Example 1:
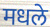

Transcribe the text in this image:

मधले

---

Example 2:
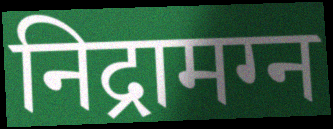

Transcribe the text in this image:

निद्रामग्न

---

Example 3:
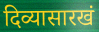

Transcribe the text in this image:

दिव्यासारखं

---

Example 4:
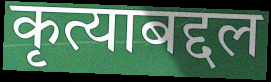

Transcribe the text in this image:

कृत्याबद्दल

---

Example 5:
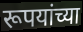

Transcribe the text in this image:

रूपयांच्या